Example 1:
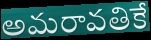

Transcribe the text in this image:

అమరావతికే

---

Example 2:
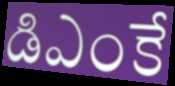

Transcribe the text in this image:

డిఎంకే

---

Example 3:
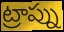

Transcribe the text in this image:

ట్రాప్ను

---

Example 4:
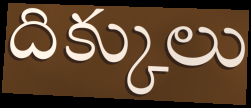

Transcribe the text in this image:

దిక్కులు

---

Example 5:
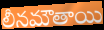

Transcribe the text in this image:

లీనమౌతాయి